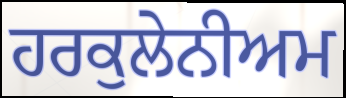
ਹਰਕੁਲੇਨੀਅਮ